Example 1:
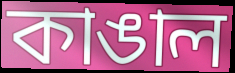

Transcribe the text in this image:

কাঙাল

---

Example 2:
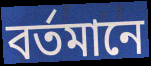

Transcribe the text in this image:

বর্তমানে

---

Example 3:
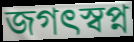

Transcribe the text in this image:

জগৎস্বপ্ন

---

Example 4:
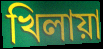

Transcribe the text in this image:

খিলায়া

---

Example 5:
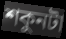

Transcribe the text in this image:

শকুনটা